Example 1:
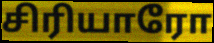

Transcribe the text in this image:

சிரியாரோ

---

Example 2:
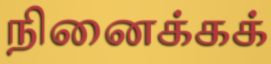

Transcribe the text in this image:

நினைக்கக்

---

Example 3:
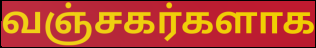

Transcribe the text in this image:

வஞ்சகர்களாக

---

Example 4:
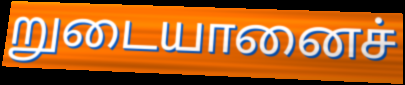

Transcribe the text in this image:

றுடையானைச்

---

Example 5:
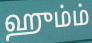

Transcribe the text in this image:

ஹும்ம்